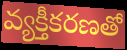
వ్యక్తీకరణతో